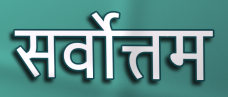
सर्वोत्तम